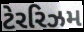
ટેરરિઝમ